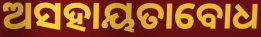
ଅସହାୟତାବୋଧ